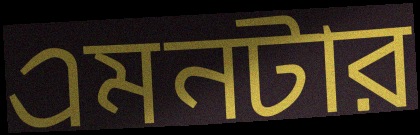
এমনটার